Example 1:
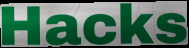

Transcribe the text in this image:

Hacks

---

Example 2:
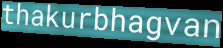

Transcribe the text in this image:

thakurbhagvan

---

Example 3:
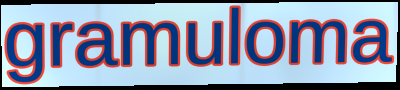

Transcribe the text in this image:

gramuloma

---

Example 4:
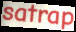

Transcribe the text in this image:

satrap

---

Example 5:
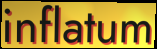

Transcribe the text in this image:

inflatum